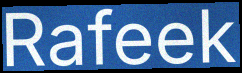
Rafeek